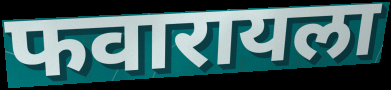
फवारायला